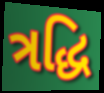
ત્રદ્ધિ